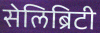
सेलिब्रिटी